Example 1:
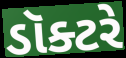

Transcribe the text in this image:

ડૉક્ટરે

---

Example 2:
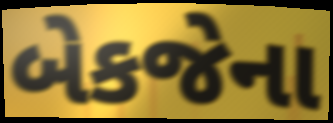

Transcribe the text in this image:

બેકજેના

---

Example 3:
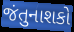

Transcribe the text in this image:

જંતુનાશકો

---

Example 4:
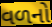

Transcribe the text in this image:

વળનો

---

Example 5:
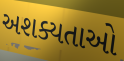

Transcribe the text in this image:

અશક્યતાઓ